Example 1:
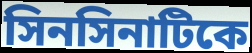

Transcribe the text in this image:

সিনসিনাটিকে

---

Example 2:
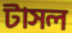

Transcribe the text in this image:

টাসল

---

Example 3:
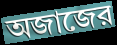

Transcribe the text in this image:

অজাজের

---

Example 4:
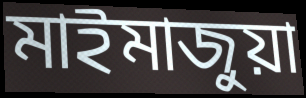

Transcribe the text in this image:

মাইমাজুয়া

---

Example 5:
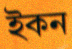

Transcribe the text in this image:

ইকন